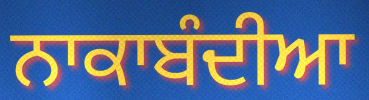
ਨਾਕਾਬੰਦੀਆ